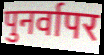
पुनर्वापर